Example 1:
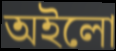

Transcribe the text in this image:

অইলো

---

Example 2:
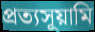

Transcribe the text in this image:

প্রত্যসূয়ামি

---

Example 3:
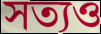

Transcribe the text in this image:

সত্যও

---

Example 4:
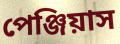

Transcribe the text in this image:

পেঞ্জিয়াস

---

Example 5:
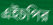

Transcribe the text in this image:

এইচপির